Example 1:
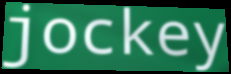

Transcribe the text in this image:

jockey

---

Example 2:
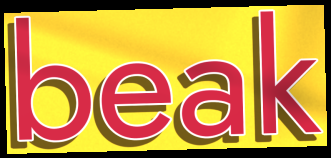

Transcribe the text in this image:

beak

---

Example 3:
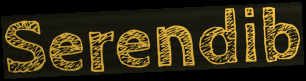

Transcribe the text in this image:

Serendib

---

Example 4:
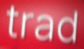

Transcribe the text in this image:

trad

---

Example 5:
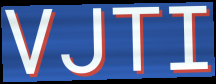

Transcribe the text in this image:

VJTI